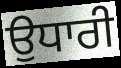
ਉਧਾਰੀ